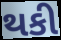
થકી